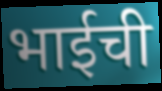
भाईची